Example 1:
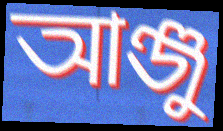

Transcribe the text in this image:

আঞ্জু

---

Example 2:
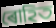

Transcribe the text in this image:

ৰোহিত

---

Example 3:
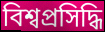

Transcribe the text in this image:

বিশ্বপ্ৰসিদ্ধি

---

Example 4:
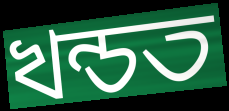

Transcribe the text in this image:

খন্ডত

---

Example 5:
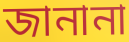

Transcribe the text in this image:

জানানা